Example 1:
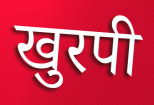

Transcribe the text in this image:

खुरपी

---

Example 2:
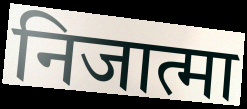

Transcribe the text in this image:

निजात्मा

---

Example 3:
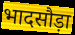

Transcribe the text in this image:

भादसौड़ा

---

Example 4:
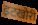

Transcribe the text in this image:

इटखोरी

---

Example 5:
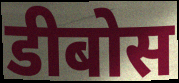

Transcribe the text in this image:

डीबोस